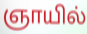
ஞாயில்